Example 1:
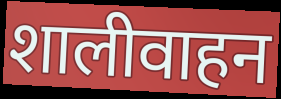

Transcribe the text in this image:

शालीवाहन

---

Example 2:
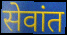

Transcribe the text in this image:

सेवांत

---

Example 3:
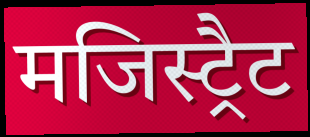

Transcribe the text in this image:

मजिस्ट्रैट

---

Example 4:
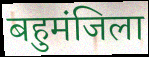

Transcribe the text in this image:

बहुमंजिला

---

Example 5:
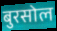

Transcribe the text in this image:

बुरसोल